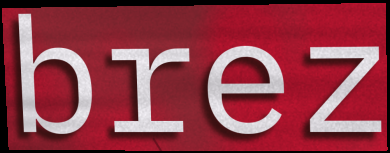
brez